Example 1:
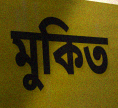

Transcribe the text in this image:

মুকিত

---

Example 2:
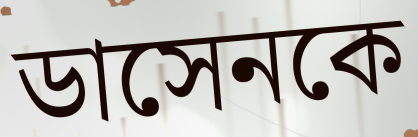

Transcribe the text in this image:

ডাসেনকে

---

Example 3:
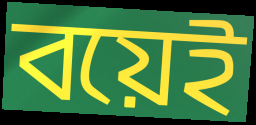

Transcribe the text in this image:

বয়েই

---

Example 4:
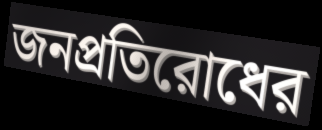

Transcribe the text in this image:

জনপ্রতিরোধের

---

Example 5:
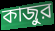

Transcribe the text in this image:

কাজুর